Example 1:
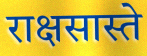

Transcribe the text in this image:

राक्षसास्ते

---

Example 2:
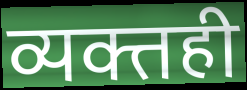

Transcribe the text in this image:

व्यक्तही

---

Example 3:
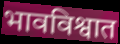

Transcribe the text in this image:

भावविश्वात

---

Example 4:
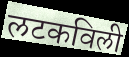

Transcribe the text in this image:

लटकविली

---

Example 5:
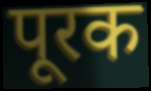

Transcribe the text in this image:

पूरक